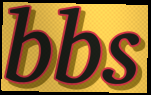
bbs